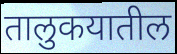
तालुकयातील